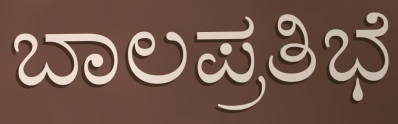
ಬಾಲಪ್ರತಿಭೆ